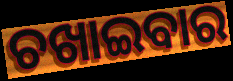
ଚଖାଇବାର